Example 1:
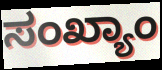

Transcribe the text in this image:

ಸಂಖ್ಯಾಂ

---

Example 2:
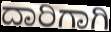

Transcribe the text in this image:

ದಾರಿಗಾಗಿ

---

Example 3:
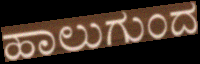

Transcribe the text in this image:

ಹಾಲುಗುಂದ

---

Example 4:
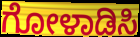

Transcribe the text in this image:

ಗೋಳಾಡಿಸಿ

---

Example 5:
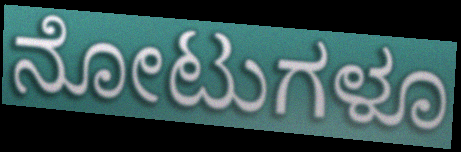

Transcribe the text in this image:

ನೋಟುಗಳೂ